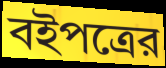
বইপত্রের